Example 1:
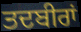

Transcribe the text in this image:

ਤਦਬੀਰਾਂ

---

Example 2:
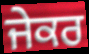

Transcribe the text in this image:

ਜੇਕਰ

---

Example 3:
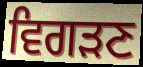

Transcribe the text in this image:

ਵਿਗੜਣ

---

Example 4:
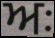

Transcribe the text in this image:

ਅਃ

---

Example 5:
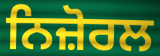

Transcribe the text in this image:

ਨਿਜ਼ੋਰਲ